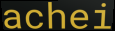
achei